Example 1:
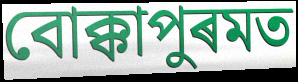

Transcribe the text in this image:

বোক্কাপুৰমত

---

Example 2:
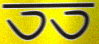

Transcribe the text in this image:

তত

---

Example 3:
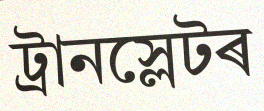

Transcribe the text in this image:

ট্ৰানস্লেটৰ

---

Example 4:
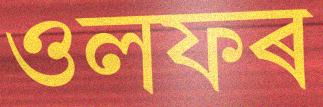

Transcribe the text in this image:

ওলফৰ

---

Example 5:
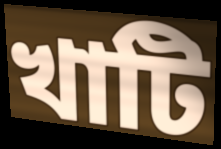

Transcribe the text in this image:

খাটি